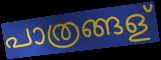
പാത്രങ്ങള്